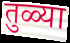
तुळ्या